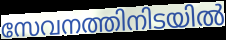
സേവനത്തിനിടയിൽ